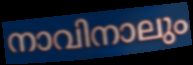
നാവിനാലും